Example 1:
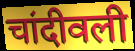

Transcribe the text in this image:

चांदीवली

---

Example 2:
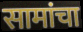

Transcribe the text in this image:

सामांचा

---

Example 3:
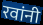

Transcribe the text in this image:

रवांनी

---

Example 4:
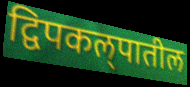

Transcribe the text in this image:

द्विपकल्पातील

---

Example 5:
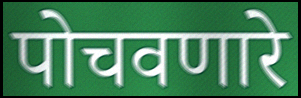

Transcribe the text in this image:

पोचवणारे